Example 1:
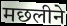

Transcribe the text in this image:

मछलीने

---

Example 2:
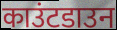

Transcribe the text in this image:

काउंटडाउन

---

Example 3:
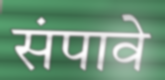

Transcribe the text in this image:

संपावे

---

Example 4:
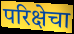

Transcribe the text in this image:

परिक्षेचा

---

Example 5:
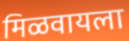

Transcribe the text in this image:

मिळवायला